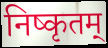
निष्कृतम्